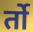
र्तो